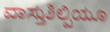
ವಾಸ್ತುಶಿಲ್ಪಿಯೂ